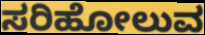
ಸರಿಹೋಲುವ